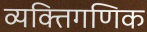
व्यक्तिगणिक